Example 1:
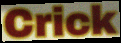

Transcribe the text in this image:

Crick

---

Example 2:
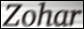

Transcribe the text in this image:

Zohar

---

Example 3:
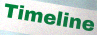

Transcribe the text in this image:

Timeline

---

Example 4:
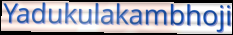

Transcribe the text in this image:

Yadukulakambhoji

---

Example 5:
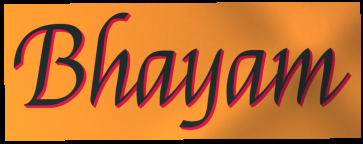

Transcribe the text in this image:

Bhayam